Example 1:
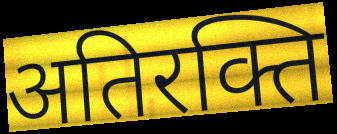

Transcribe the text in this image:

अतिरक्ति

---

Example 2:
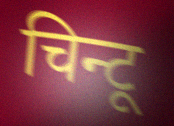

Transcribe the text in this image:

चिन्टू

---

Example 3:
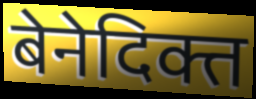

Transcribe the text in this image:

बेनेदिक्त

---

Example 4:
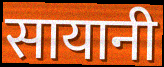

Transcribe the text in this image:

सायानी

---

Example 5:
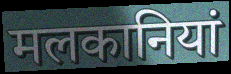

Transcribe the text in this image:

मलकानियां